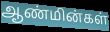
ஆண்மின்கள்